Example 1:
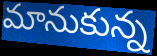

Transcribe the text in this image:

మానుకున్న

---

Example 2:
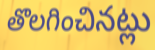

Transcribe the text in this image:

తొలగించినట్లు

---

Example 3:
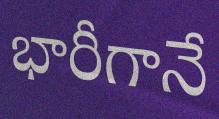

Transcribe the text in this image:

భారీగానే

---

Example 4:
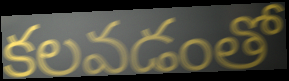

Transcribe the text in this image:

కలవడంతో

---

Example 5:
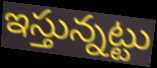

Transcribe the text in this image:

ఇస్తున్నట్టు